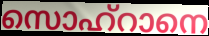
സൊഹ്റാനെ